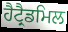
ਹੈਟ੍ਰੈਡਮਿਲ